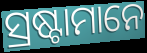
ସ୍ରଷ୍ଟାମାନେ